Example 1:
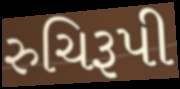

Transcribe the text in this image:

રુચિરૂપી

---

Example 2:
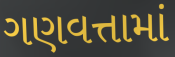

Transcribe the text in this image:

ગણવત્તામાં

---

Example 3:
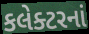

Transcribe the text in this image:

કલેક્ટરનાં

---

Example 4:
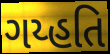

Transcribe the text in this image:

ગય્હતિ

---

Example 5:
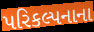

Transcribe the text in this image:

પરિકલ્પનાના